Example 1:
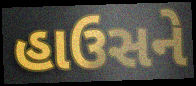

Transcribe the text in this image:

હાઉસને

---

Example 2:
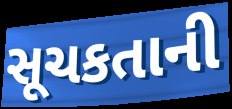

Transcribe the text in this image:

સૂચકતાની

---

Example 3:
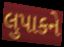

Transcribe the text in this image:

લુપાકને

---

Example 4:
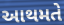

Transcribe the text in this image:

આથમતે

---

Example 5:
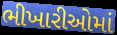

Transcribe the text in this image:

ભીખારીઓમાં